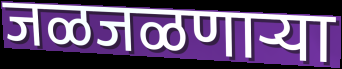
जळजळणाऱ्या